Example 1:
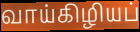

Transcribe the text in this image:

வாய்கிழியப்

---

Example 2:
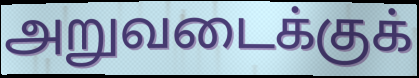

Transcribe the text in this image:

அறுவடைக்குக்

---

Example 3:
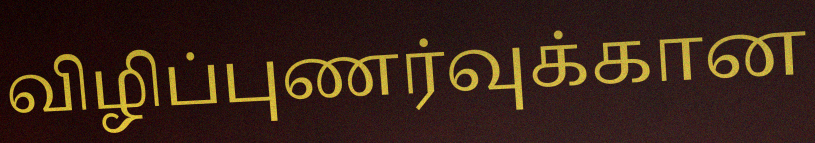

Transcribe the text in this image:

விழிப்புணர்வுக்கான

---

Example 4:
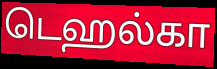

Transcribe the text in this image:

டெஹல்கா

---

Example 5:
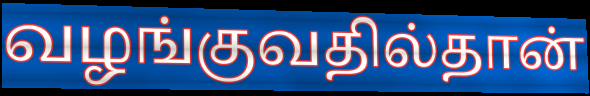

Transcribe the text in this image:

வழங்குவதில்தான்